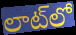
లాట్‌లో